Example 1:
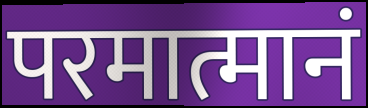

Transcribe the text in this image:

परमात्मानं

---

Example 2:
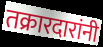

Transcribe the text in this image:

तक्रारदारांनी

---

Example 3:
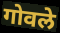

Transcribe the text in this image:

गोवले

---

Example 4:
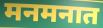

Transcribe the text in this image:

मनमनात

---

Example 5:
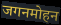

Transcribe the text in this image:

जगनमोहन